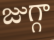
జుగ్గా